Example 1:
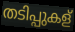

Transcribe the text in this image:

തടിപ്പുകള്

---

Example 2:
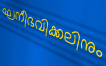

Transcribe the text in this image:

ഘനീഭവിക്കലിനും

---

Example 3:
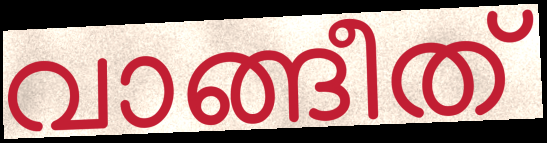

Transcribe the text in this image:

വാങ്ങീത്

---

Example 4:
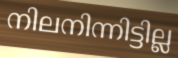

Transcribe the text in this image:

നിലനിന്നിട്ടില്ല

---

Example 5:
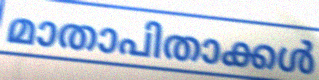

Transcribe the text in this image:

മാതാപിതാക്കൾ